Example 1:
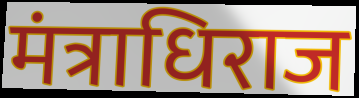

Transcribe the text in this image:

मंत्राधिराज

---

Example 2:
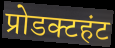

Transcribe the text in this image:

प्रोडक्टहंट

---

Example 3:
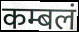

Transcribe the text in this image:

कम्बलं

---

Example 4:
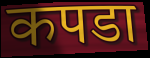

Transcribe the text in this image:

कपडा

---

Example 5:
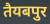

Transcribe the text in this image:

तैयबपुर